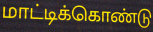
மாட்டிக்கொண்டு